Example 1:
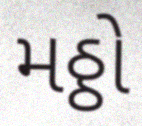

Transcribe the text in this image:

મઠ્ઠો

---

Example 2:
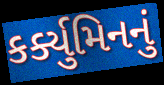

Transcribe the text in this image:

કર્ક્યુમિનનું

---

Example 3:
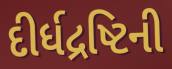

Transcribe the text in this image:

દીર્ધદ્રષ્ટિની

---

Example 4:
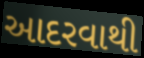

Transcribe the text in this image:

આદરવાથી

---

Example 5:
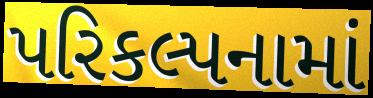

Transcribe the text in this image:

પરિકલ્પનામાં